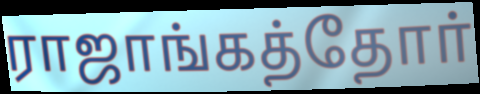
ராஜாங்கத்தோர்